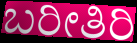
ಬರೀತಿರಿ